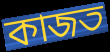
কাজত